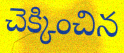
చెక్కించిన